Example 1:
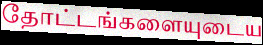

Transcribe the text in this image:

தோட்டங்களையுடைய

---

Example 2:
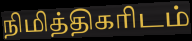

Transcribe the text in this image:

நிமித்திகரிடம்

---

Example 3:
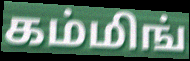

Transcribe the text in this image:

கம்மிங்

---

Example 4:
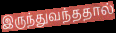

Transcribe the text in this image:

இருந்துவந்ததால்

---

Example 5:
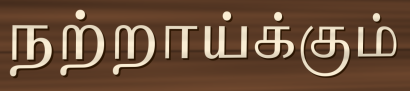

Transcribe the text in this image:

நற்றாய்க்கும்